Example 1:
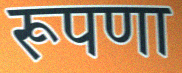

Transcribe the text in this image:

रूपणा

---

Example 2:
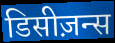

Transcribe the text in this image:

डिसीज़न्स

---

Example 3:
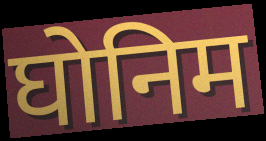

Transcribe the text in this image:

घोनिम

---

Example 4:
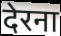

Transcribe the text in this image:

देरना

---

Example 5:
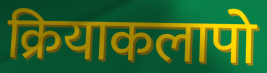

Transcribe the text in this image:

क्रियाकलापो